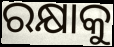
ରକ୍ଷାକୁ